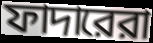
ফাদারেরা